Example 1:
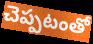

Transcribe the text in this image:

చెప్పటంతో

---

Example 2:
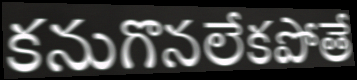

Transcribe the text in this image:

కనుగొనలేకపోతే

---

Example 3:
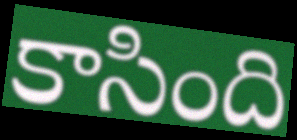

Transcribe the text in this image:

కాసింది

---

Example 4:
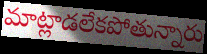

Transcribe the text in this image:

మాట్లాడలేకపోతున్నారు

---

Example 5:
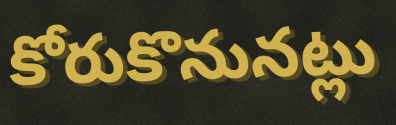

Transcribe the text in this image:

కోరుకొనునట్లు